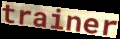
trainer